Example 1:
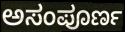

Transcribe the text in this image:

ಅಸಂಪೂರ್ಣ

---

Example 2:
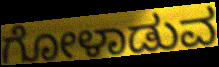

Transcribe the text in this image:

ಗೋಳಾಡುವ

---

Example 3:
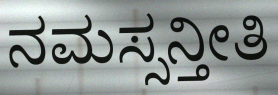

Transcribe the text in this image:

ನಮಸ್ಸನ್ತೀತಿ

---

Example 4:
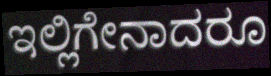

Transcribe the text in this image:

ಇಲ್ಲಿಗೇನಾದರೂ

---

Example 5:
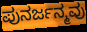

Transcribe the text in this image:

ಪುನರ್ಜನ್ಮವು